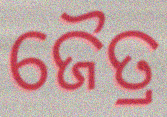
ଜୈତ୍ର